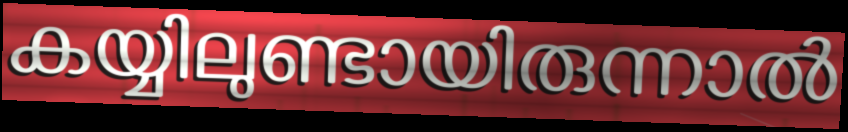
കയ്യിലുണ്ടായിരുന്നാൽ